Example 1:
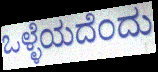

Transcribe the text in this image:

ಒಳ್ಳೆಯದೆಂದು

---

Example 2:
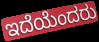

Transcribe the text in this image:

ಇದೆಯೆಂದರು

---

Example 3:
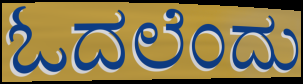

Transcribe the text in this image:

ಓದಲೆಂದು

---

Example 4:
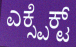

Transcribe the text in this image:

ಎಕ್ಸ್ಪೆಕ್ಟ್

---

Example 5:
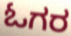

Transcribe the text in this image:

ಓಗರ